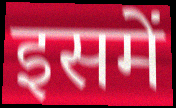
इसमें